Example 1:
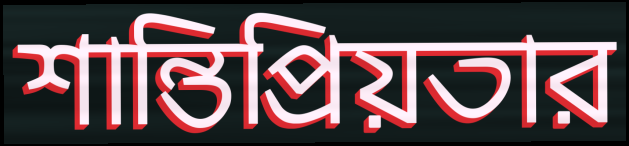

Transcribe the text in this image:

শান্তিপ্রিয়তার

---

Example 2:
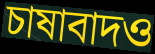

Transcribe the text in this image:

চাষাবাদও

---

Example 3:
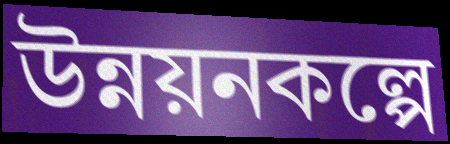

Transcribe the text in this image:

উন্নয়নকল্পে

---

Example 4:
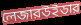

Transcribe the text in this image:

লেজারউইডার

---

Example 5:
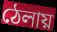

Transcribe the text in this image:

ঠেলায়